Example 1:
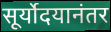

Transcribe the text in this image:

सूर्योदयानंतर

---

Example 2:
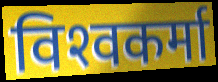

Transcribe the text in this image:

विश्वकर्मा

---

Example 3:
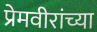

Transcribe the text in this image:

प्रेमवीरांच्या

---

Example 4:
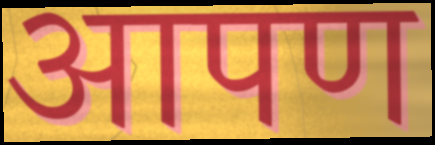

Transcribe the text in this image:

आपण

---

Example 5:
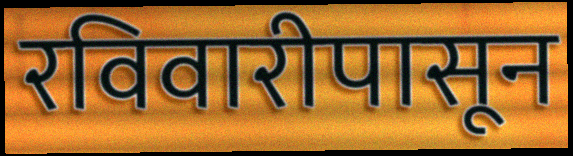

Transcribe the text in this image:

रविवारीपासून